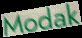
Modak